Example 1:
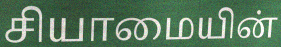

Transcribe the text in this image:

சியாமையின்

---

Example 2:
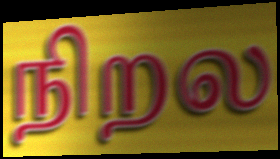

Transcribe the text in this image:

நிறல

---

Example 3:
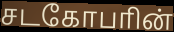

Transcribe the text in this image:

சடகோபரின்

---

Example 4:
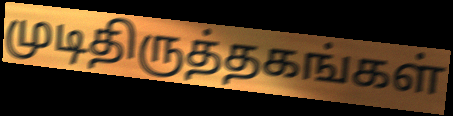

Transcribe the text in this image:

முடிதிருத்தகங்கள்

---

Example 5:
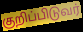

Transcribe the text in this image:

குறிப்பிடுவர்